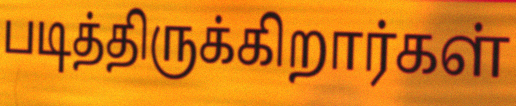
படித்திருக்கிறார்கள்